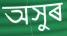
অসুৰ